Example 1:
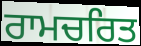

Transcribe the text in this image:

ਰਾਮਚਰਿਤ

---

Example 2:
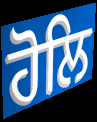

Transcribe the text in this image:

ਹੋਲਿ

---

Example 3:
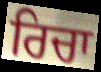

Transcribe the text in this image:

ਰਿਚਾ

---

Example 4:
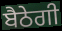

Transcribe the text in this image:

ਬੈਠੇਗੀ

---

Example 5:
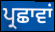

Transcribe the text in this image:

ਪ੍ਰਛਾਵਾਂ